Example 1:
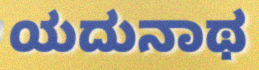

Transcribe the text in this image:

ಯದುನಾಥ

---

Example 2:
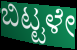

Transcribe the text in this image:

ಬಿಟ್ಟಳೇ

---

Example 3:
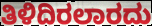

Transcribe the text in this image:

ತಿಳಿದಿರಲಾರದು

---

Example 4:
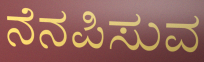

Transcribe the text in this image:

ನೆನಪಿಸುವ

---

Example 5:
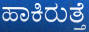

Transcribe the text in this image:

ಹಾಕಿರುತ್ತೆ